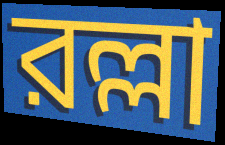
রল্লা